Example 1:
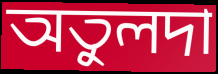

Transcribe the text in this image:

অতুলদা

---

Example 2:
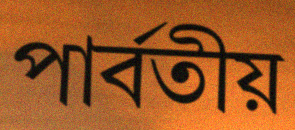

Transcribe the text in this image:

পার্বতীয়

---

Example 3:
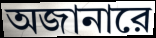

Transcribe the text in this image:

অজানারে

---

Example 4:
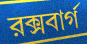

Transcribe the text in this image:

রক্সবার্গ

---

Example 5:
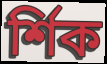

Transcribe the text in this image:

র্শিক